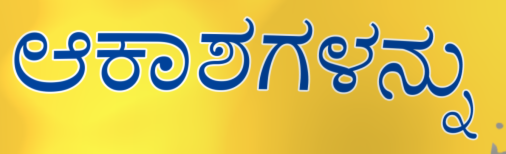
ಆಕಾಶಗಳನ್ನು